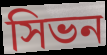
সিভন